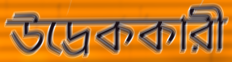
উদ্রেককারী